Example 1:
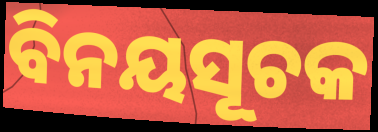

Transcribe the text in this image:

ବିନୟସୂଚକ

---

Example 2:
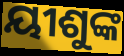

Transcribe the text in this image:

ୟୀଶୁଙ୍କ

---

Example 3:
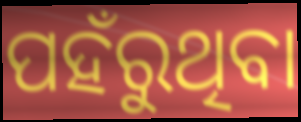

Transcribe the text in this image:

ପହଁରୁଥିବା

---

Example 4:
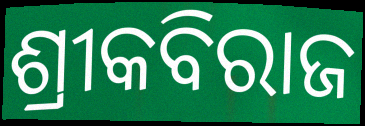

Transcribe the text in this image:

ଶ୍ରୀକବିରାଜ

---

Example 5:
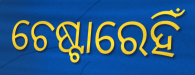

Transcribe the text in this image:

ଚେଷ୍ଟାରେହିଁ